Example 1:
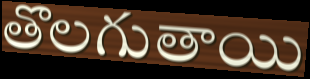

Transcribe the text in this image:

తొలగుతాయి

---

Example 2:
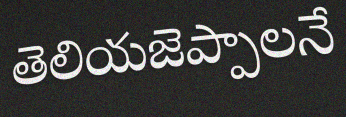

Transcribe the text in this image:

తెలియజెప్పాలనే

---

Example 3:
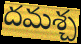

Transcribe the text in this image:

దమశ్చ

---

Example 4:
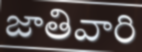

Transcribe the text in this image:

జాతివారి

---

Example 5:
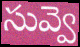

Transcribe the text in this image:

సువ్వె